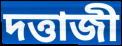
দত্তাজী